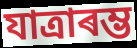
যাত্ৰাৰম্ভ